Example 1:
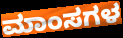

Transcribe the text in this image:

ಮಾಂಸಗಳ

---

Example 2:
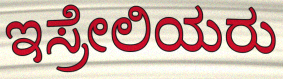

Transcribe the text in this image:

ಇಸ್ರೇಲಿಯರು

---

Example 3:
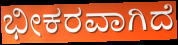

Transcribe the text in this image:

ಭೀಕರವಾಗಿದೆ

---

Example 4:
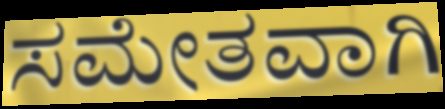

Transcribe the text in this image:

ಸಮೇತವಾಗಿ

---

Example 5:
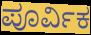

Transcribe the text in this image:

ಪೂರ್ವಿಕ